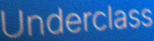
Underclass